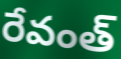
రేవంత్